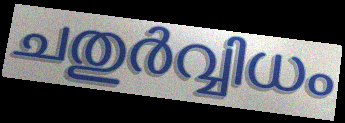
ചതുർവ്വിധം